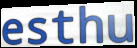
esthu